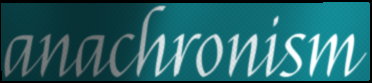
anachronism